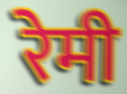
रेमी